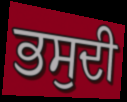
ਭਸੁਦੀ